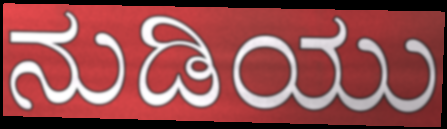
ನುಡಿಯು